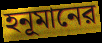
হনূমানের